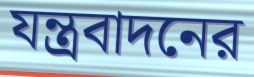
যন্ত্রবাদনের